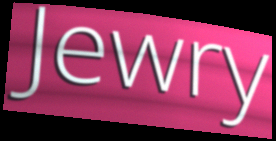
Jewry